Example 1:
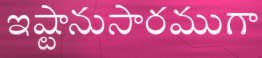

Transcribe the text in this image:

ఇష్టానుసారముగా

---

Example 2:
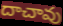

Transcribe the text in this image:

దాచావు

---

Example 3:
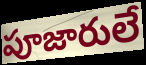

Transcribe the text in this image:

పూజారులే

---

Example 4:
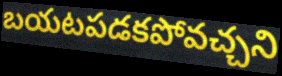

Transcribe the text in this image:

బయటపడకపోవచ్చని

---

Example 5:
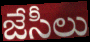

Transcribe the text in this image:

జేసీలు